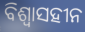
ବିଶ୍ୱାସହୀନ